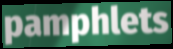
pamphlets